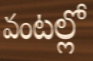
వంటల్లో